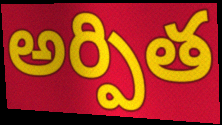
అర్పిత